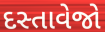
દસ્તાવેજો